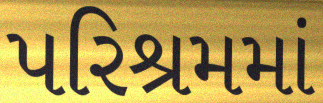
પરિશ્રમમાં